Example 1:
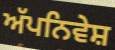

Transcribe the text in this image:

ਅੱਪਨਿਵੇਸ਼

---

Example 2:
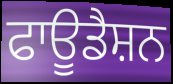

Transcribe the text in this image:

ਫਾਊਡੈਸ਼ਨ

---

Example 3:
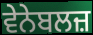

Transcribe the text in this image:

ਵੇਨੇਬਲਜ਼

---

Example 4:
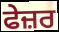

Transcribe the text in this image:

ਫੇਜ਼ਰ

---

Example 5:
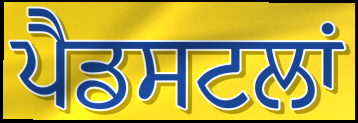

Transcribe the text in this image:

ਪੈਡਸਟਲਾਂ